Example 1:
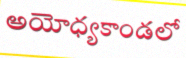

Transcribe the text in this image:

అయోధ్యకాండలో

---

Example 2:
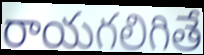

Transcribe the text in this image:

రాయగలిగితే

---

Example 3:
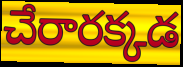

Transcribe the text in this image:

చేరారక్కడ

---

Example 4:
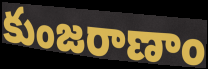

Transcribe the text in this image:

కుంజరాణాం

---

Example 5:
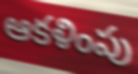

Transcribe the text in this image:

ఆకళింపు